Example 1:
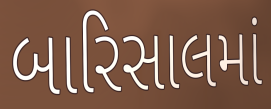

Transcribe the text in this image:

બારિસાલમાં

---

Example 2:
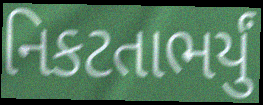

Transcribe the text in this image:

નિકટતાભર્યું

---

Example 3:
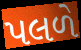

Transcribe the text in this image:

પલળે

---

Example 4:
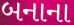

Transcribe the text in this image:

બનાના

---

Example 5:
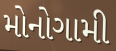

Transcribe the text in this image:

મોનોગામી